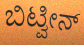
ಬಿಟ್ವೀನ್